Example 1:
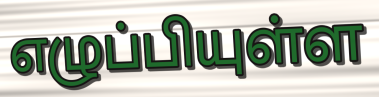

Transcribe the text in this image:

எழுப்பியுள்ள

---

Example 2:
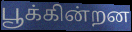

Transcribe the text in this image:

பூக்கின்றன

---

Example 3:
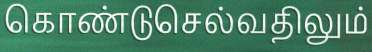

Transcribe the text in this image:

கொண்டுசெல்வதிலும்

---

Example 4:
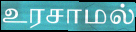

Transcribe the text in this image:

உரசாமல்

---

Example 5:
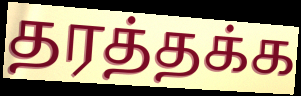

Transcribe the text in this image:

தரத்தக்க